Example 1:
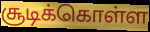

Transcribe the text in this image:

சூடிக்கொள்ள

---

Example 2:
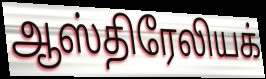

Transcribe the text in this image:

ஆஸ்திரேலியக்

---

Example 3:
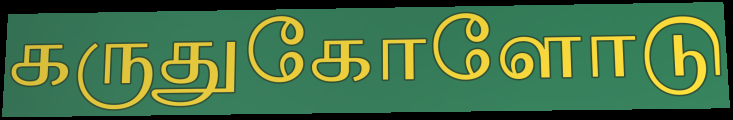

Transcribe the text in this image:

கருதுகோளோடு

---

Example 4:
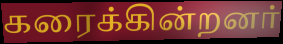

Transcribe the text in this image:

கரைக்கின்றனர்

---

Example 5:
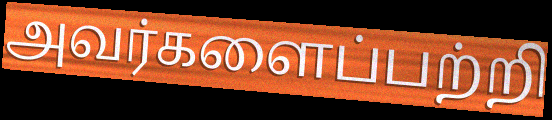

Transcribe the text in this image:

அவர்களைப்பற்றி